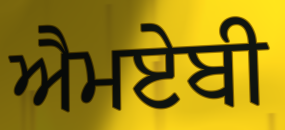
ਐਮਏਬੀ